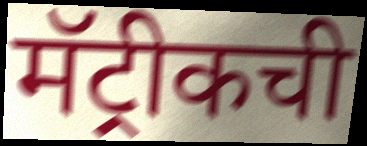
मॅट्रीकची